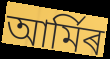
আৰ্মিৰ